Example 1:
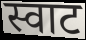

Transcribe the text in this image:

स्वाट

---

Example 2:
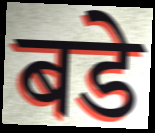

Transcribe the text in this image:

बडे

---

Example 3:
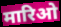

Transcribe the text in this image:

मारिओ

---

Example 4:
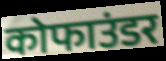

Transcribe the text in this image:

कोफाउंडर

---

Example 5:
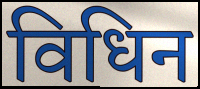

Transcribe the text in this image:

विधिन